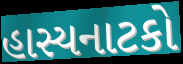
હાસ્યનાટકો